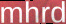
mhrd